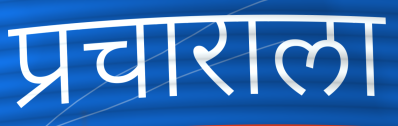
प्रचाराला